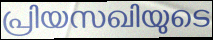
പ്രിയസഖിയുടെ